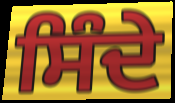
ਸਿੰਦੇ